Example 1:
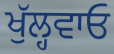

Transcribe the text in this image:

ਖੁੱਲ੍ਹਵਾਓ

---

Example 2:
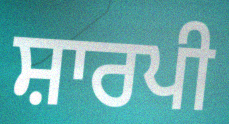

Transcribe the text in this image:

ਸ਼ਾਰਪੀ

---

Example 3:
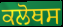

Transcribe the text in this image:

ਕਲੋਥਸ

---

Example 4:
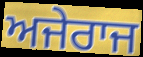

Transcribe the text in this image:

ਅਜੇਰਾਜ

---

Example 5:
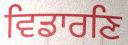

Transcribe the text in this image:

ਵਿਡਾਰਣਿ